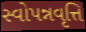
સ્વોપન્નવૃત્તિ